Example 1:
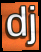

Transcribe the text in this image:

dj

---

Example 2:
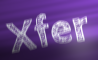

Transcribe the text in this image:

Xfer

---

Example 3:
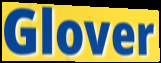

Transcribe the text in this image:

Glover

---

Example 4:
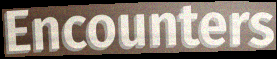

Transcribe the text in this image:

Encounters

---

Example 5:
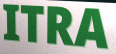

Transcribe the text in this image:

ITRA